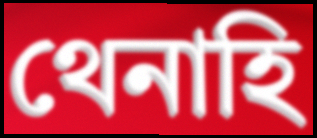
থেনাহি